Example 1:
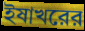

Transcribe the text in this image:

ইষাখরের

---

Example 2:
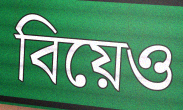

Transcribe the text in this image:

বিয়েও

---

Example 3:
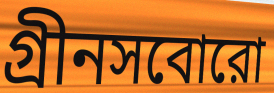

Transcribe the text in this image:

গ্রীনসবোরো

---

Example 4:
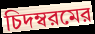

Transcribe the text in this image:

চিদম্বরমের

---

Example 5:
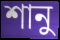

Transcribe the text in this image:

শানু